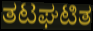
ತಟಘಟಿತ